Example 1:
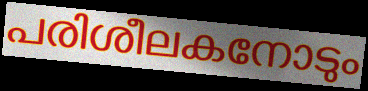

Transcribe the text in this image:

പരിശീലകനോടും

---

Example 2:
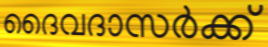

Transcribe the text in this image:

ദൈവദാസർക്ക്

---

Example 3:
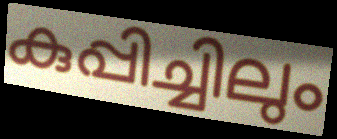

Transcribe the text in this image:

കുപ്പിച്ചിലും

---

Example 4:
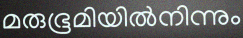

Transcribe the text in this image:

മരുഭൂമിയിൽനിന്നും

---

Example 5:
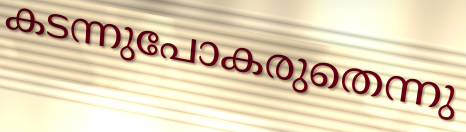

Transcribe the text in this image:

കടന്നുപോകരുതെന്നു